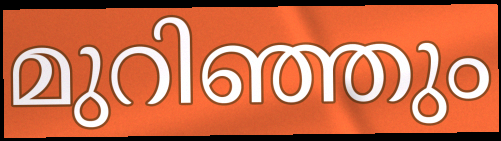
മുറിഞ്ഞും